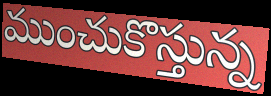
ముంచుకొస్తున్న